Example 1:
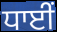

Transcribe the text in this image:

ਧਾਈਂ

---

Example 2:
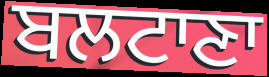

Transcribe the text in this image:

ਬਲਟਾਣਾ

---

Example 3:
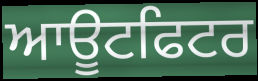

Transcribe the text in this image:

ਆਊਟਫਿਟਰ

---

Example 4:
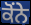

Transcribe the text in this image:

ਕੋਂਨੇ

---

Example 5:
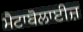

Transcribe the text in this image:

ਮੈਟਾਬੋਲਾਈਜ਼